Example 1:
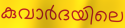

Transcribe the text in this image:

കുവാർദയിലെ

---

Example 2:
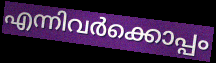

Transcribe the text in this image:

എന്നിവർക്കൊപ്പം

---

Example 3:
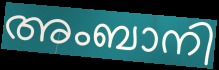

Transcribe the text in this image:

അംബാനി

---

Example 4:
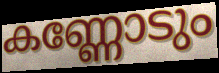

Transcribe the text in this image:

കണ്ണോടും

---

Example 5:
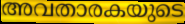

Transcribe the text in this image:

അവതാരകയുടെ